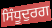
ਸਿੰਧੂਦੁਰਗ